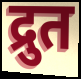
द्रुत